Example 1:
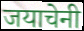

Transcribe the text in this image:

जयाचेनी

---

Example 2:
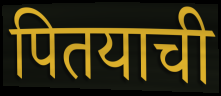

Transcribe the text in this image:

पितयाची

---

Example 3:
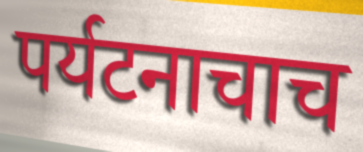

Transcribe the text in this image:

पर्यटनाचाच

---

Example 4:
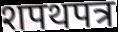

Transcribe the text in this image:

शपथपत्र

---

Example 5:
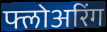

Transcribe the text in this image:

फ्लोअरिंग